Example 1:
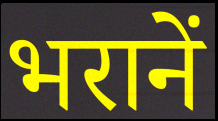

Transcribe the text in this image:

भरानें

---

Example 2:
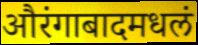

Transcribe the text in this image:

औरंगाबादमधलं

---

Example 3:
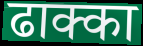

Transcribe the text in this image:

ढाक्का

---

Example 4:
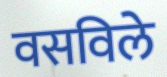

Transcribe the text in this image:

वसविले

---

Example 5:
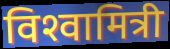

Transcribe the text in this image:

विश्वामित्री